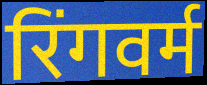
रिंगवर्म